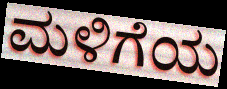
ಮಳಿಗೆಯ